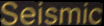
Seismic